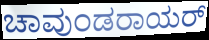
ಚಾವುಂಡರಾಯರ್